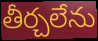
తీర్చలేను